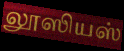
லூஸியஸ்